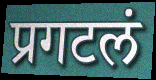
प्रगटलं